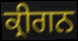
ਕ੍ਰੀਗਨ